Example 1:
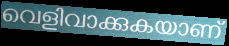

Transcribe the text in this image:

വെളിവാക്കുകയാണ്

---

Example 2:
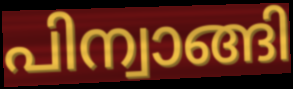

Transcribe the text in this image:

പിന്വാങ്ങി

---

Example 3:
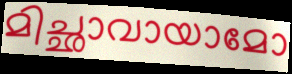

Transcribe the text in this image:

മിച്ഛാവായാമോ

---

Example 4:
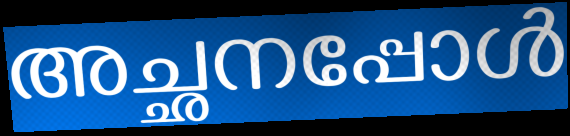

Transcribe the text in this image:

അച്ഛനപ്പോൾ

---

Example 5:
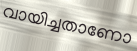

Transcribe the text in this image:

വായിച്ചതാണോ